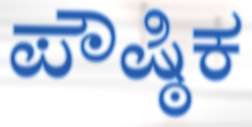
ಪೌಷ್ಠಿಕ